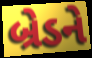
બ્રેડને